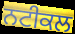
ਨਟੀਕਲ